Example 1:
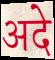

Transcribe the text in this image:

अदे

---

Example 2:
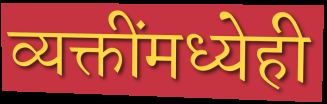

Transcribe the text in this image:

व्यक्तींमध्येही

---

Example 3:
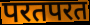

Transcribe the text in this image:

परतपरत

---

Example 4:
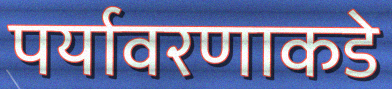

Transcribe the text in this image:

पर्यावरणाकडे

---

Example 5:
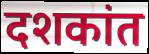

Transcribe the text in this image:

दशकांत